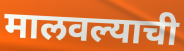
मालवल्याची